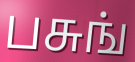
பசுங்